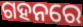
ଗହନରେ